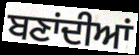
ਬਣਾਂਦੀਆਂ